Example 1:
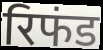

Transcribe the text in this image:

रिफंड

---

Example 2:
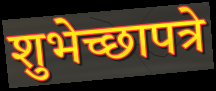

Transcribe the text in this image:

शुभेच्छापत्रे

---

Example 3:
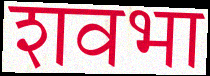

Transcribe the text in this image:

शवभा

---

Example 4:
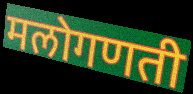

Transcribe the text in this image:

मलोगणती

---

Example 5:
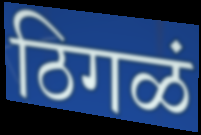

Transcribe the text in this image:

ठिगळं